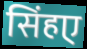
सिंहए